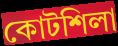
কোটশিলা